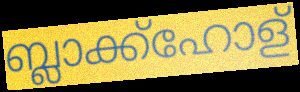
ബ്ലാക്ക്ഹോള്